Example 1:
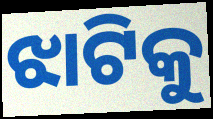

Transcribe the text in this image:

ଝାଟିକୁ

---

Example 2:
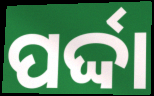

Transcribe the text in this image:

ପର୍ଦ୍ଦା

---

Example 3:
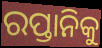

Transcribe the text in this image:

ରପ୍ତାନିକୁ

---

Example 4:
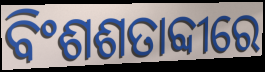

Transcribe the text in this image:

ବିଂଶଶତାବ୍ଦୀରେ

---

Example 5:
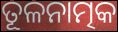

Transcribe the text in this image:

ତୂଳନାତ୍ମକ